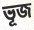
ভূজ